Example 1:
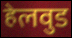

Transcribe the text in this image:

हेलवुड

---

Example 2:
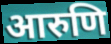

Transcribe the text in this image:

आरुणि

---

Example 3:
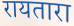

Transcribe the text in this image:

रायतारा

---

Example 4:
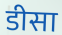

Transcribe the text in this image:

डीसा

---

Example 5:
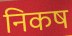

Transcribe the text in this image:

निकष